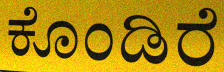
ಕೊಂಡಿರೆ